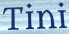
Tini